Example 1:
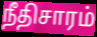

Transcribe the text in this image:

நீதிசாரம்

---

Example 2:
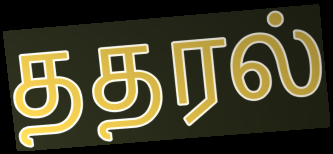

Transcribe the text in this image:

ததரல்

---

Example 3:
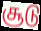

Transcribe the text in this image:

சூடு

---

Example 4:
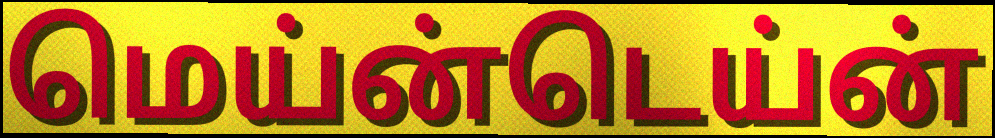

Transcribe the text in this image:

மெய்ன்டெய்ன்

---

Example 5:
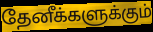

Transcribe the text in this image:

தேனீக்களுக்கும்